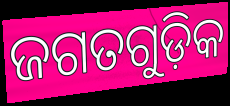
ଜଗତଗୁଡ଼ିକ